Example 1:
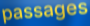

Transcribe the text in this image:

passages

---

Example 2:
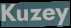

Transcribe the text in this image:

Kuzey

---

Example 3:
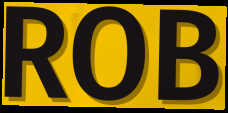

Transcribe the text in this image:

ROB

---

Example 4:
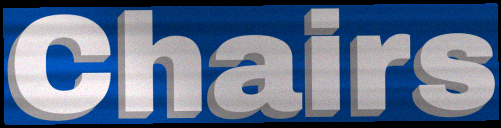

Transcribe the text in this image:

Chairs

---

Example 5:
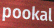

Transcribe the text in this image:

pookal